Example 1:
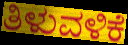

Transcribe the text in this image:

ತಿಳುವಳಿಕೆ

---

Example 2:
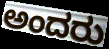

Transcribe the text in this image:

ಅಂದರು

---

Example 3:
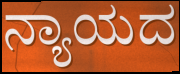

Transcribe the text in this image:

ನ್ಯಾಯದ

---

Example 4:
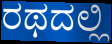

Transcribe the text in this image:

ರಥದಲ್ಲಿ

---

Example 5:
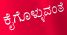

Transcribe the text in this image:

ಕೈಗೊಳ್ಳುವಂತೆ